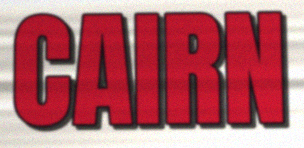
CAIRN